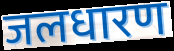
जलधारण